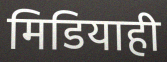
मिडियाही